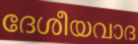
ദേശീയവാദ